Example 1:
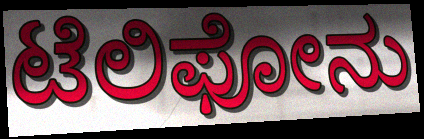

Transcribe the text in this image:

ಟೆಲಿಫೋನು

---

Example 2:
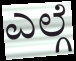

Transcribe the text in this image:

ಎಲ್ಗೆ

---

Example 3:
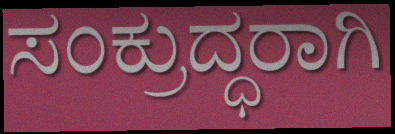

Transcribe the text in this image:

ಸಂಕ್ರುದ್ಧರಾಗಿ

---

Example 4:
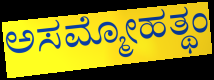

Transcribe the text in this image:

ಅಸಮ್ಮೋಹತ್ಥಂ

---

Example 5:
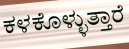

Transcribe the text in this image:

ಕಳಕೊಳ್ಳುತ್ತಾರೆ